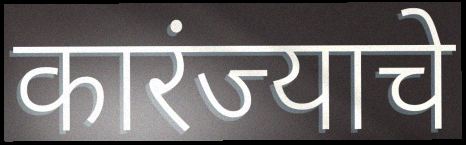
कारंज्याचे